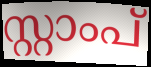
സ്റ്റാംപ്